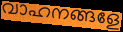
വാഹനങ്ങളേ